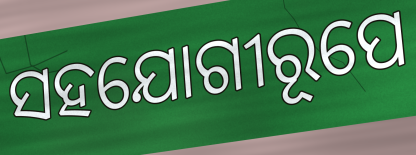
ସହଯୋଗୀରୂପେ